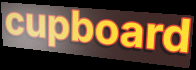
cupboard